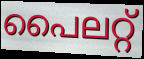
പൈലറ്റ്